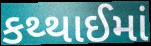
કથ્થાઈમાં